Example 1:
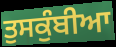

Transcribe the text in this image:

ਤੁਸਕੁੰਬੀਆ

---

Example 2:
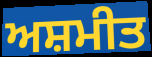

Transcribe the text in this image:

ਅਸ਼ਮੀਤ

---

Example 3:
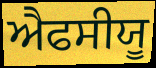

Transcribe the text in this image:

ਐਫਸੀਯੂ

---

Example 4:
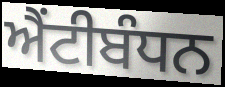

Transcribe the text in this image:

ਐਂਟੀਬੰਧਨ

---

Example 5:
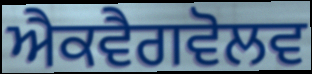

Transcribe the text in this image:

ਐਕਵੈਗਵੋਲਵ